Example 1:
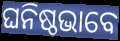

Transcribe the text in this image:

ଘନିଷ୍ଠଭାବେ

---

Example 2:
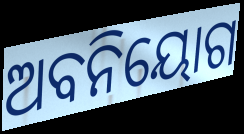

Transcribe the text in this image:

ଅବନିୟୋଗ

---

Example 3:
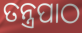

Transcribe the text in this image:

ତନ୍ତ୍ରପାଠ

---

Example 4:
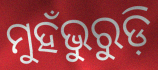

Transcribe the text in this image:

ମୁହଁଭୁରୁଡ଼ି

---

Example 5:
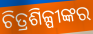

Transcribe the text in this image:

ଚିତ୍ରଶିଳ୍ପୀଙ୍କର